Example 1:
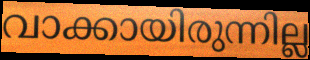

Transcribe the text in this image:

വാക്കായിരുന്നില്ല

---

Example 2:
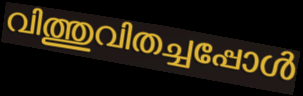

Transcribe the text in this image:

വിത്തുവിതച്ചപ്പോൾ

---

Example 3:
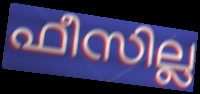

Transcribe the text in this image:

ഫീസില്ല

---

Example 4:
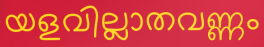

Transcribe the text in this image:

യളവില്ലാതവണ്ണം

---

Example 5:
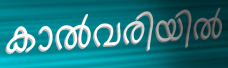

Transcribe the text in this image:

കാൽവരിയിൽ